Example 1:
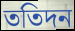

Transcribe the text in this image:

ততিদন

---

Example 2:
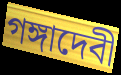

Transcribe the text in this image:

গঙ্গাদেবী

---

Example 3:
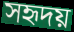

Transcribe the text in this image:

সহৃদয়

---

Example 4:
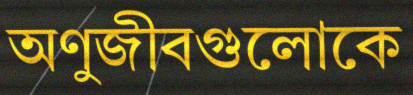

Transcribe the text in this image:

অণুজীবগুলোকে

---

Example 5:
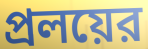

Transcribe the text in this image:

প্রলয়ের